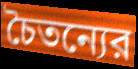
চৈতন্যের